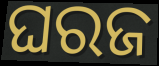
ଘରଜ